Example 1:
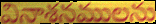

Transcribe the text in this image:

వినాశనములను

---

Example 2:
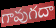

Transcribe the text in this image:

గావుగదా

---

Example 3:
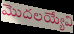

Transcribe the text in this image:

మొదలయ్యేవి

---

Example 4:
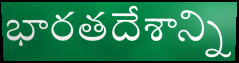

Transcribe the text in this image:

భారతదేశాన్ని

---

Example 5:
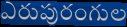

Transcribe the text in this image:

ఎరుపురంగుల